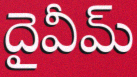
దైవీమ్